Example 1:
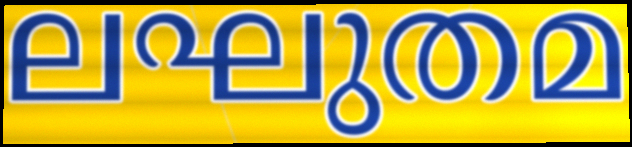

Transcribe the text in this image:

ലഘുതമ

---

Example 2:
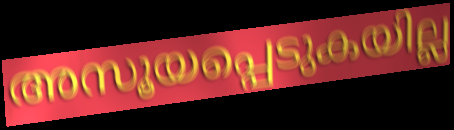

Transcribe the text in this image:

അസൂയപ്പെടുകയില്ല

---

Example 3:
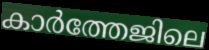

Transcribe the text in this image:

കാർത്തേജിലെ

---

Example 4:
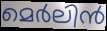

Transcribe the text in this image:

മെർലിൻ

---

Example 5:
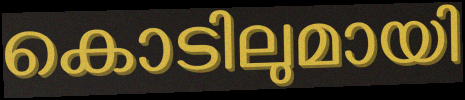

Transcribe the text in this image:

കൊടിലുമായി